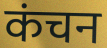
कंचन